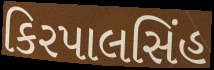
કિરપાલસિંહ